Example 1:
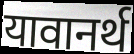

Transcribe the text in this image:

यावानर्थ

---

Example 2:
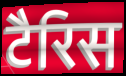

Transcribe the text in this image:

टैरिस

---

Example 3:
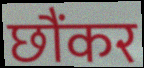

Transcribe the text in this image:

छौंकर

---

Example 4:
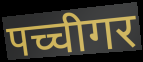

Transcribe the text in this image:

पच्चीगर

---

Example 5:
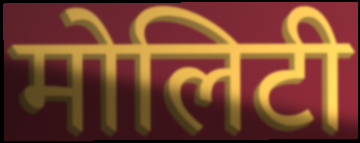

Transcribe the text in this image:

मोलिटी